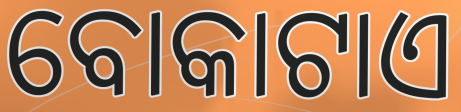
ବୋକାଟାଏ